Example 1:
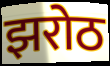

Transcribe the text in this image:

झरोठ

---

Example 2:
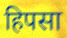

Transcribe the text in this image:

हिपसा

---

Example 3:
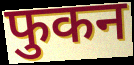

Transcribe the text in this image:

फुकन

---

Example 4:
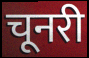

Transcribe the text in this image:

चूनरी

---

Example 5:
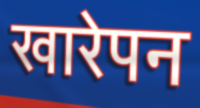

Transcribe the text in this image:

खारेपन